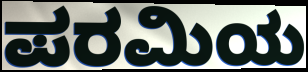
ಪರಮಿಯ